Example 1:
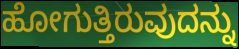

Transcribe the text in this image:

ಹೋಗುತ್ತಿರುವುದನ್ನು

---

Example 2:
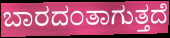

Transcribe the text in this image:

ಬಾರದಂತಾಗುತ್ತದೆ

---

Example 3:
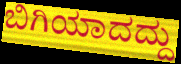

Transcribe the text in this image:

ಬಿಗಿಯಾದದ್ದು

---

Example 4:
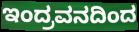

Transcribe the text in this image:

ಇಂದ್ರವನದಿಂದ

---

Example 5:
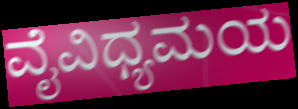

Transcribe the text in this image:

ವೈವಿಧ್ಯಮಯ